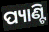
ପ୍ୟାଣ୍ଟି